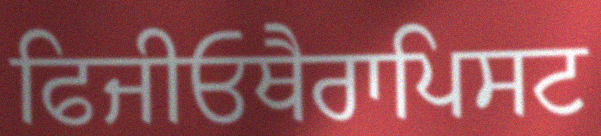
ਫਿਜੀਓਥੈਰਾਪਿਸਟ